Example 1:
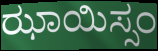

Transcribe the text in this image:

ಝಾಯಿಸ್ಸಂ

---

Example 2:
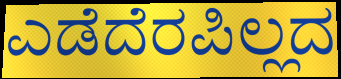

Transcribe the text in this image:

ಎಡೆದೆರಪಿಲ್ಲದ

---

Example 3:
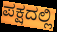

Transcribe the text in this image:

ಪಕ್ಷದಲ್ಲಿ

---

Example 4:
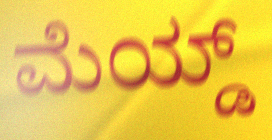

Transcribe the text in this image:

ಮೆಯ್ಡ್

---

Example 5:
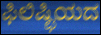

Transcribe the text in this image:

ಫಿಲಿಷ್ಟಿಯದ